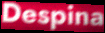
Despina